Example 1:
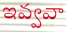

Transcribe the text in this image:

ఇవ్వవా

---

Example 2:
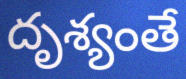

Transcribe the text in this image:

దృశ్యంతే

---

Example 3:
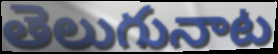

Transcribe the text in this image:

తెలుగునాట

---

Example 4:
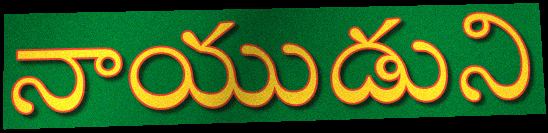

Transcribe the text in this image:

నాయుడుని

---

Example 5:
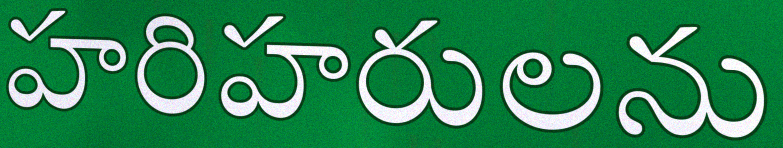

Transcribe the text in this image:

హరిహరులను